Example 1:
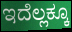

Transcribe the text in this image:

ಇದೆಲ್ಲಕ್ಕೂ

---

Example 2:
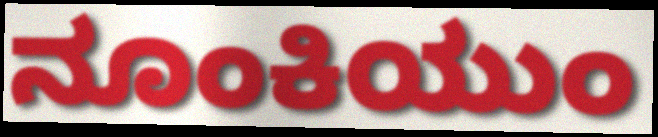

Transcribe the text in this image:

ನೂಂಕಿಯುಂ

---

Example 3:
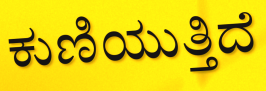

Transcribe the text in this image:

ಕುಣಿಯುತ್ತಿದೆ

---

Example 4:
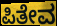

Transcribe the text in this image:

ಪಿತೇವ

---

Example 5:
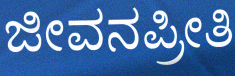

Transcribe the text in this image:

ಜೀವನಪ್ರೀತಿ